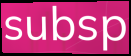
subsp